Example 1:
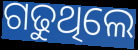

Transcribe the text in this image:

ଗଢୁଥିଲେ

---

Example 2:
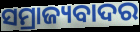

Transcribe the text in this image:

ସମ୍ରାଜ୍ୟବାଦର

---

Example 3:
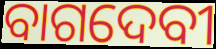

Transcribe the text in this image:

ବାଗଦେବୀ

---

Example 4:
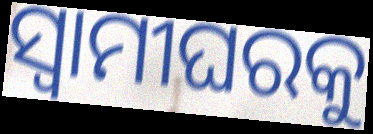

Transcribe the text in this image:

ସ୍ୱାମୀଘରକୁ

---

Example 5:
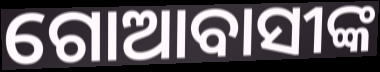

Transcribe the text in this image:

ଗୋଆବାସୀଙ୍କ